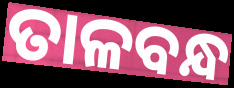
ତାଳବନ୍ଧ